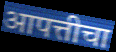
आपत्तीचा